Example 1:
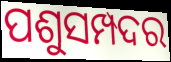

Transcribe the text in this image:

ପଶୁସମ୍ପଦର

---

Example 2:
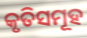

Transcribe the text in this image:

କୃତିସମୂହ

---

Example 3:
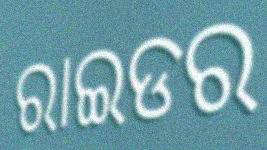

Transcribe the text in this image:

ରାଇଡର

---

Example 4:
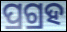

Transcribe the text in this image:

ପ୍ରଗ୍ରହ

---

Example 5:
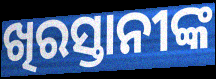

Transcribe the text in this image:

ଖିରସ୍ତାନୀଙ୍କ